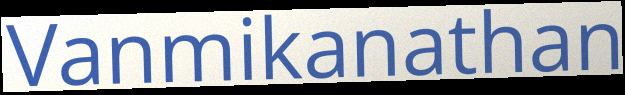
Vanmikanathan